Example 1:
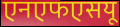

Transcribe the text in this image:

एनएफएसयू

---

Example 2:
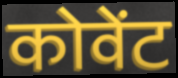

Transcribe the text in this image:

कोवेंट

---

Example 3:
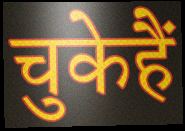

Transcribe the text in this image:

चुकेहैं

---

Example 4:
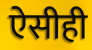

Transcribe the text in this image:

ऐसीही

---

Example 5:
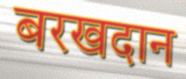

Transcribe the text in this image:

बरखदान